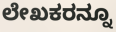
ಲೇಖಕರನ್ನೂ